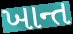
ખાન્ત